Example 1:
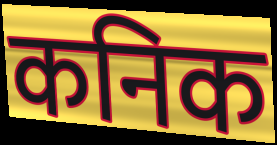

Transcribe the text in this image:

कनिक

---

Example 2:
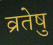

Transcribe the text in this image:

व्रतेषु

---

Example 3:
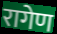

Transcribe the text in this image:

रागेण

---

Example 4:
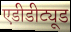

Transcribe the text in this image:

एडीडीट्यूड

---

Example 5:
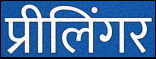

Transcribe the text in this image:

प्रीलिंगर